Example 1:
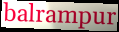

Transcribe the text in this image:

balrampur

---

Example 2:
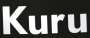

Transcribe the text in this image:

Kuru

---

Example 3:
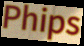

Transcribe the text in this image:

Phips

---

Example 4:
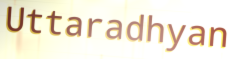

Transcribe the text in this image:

Uttaradhyan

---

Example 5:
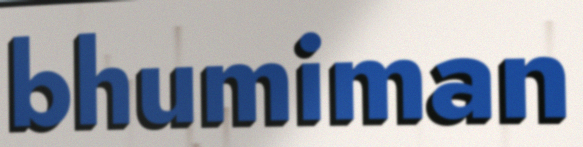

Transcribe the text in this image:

bhumiman